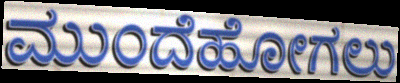
ಮುಂದೆಹೋಗಲು